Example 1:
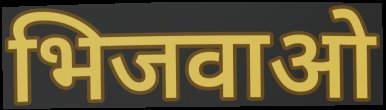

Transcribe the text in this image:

भिजवाओ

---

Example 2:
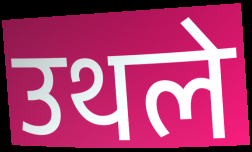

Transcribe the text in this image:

उथले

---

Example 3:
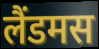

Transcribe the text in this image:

लैंडमस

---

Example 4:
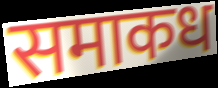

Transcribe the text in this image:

समाकध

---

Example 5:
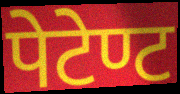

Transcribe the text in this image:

पेटेण्ट